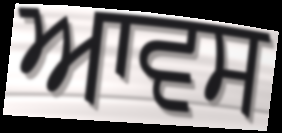
ਆਵਸ